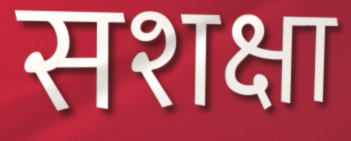
सशक्षा